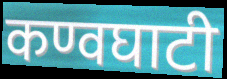
कण्वघाटी